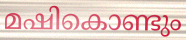
മഷികൊണ്ടും